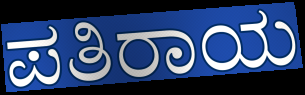
ಪತಿರಾಯ